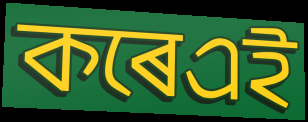
কৰেএই